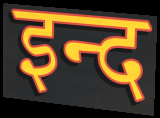
इन्द